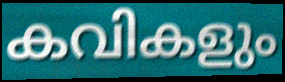
കവികളും